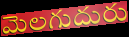
మెలగుదురు